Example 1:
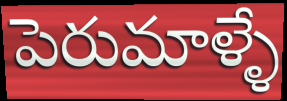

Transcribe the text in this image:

పెరుమాళ్ళే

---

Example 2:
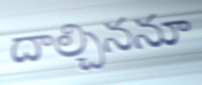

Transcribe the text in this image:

దాల్చిననూ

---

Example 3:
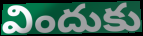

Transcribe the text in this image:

విందుకు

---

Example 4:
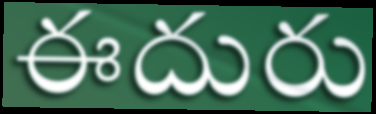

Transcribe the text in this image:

ఈదురు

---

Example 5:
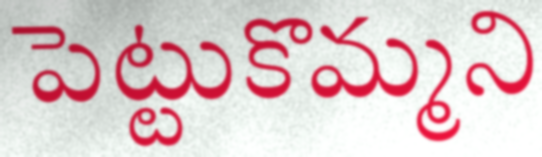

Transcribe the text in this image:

పెట్టుకొమ్మని